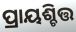
ପ୍ରାୟଶ୍ଚିତ୍ତ